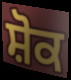
ਸ਼ੋਕ